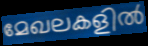
മേഖലകളിൽ